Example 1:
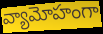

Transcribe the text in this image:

వ్యామోహంగా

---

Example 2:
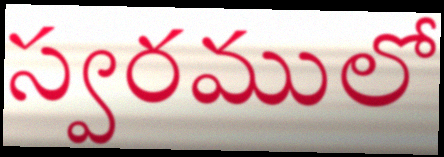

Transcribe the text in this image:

స్వరములో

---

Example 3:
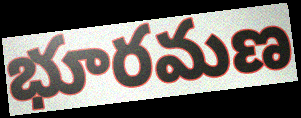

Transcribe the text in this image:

భూరమణ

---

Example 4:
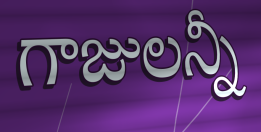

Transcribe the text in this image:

గాజులన్నీ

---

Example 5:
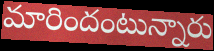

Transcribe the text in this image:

మారిందంటున్నారు